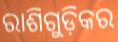
ରାଶିଗୁଡ଼ିକର